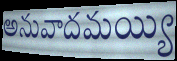
అనువాదమయ్యి